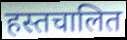
हस्तचालित